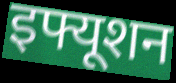
इफ्यूशन